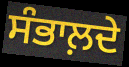
ਸੰਭਾਲ਼ਦੇ